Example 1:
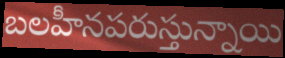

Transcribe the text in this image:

బలహీనపరుస్తున్నాయి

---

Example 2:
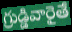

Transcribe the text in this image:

గ్రుడ్డివారైతే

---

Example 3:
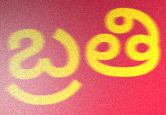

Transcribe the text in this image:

బ్రతి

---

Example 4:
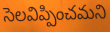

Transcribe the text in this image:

సెలవిప్పించమని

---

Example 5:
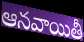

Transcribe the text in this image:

ఆనవాయితీ